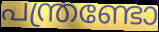
പന്ത്രണ്ടോ